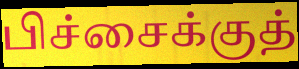
பிச்சைக்குத்